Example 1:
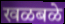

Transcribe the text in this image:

खळबळे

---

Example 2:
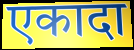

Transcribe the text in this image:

एकादा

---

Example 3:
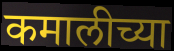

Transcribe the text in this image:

कमालीच्या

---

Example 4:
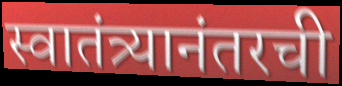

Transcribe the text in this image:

स्वातंत्र्यानंतरची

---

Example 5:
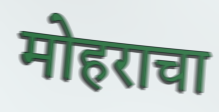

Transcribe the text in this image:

मोहराचा